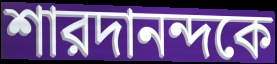
শারদানন্দকে